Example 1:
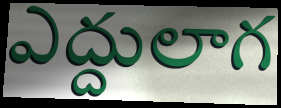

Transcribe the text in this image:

ఎద్దులాగ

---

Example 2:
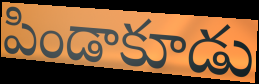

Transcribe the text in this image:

పిండాకూడు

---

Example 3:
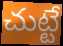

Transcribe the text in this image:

చుట్టే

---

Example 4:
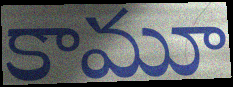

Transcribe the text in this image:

కామూ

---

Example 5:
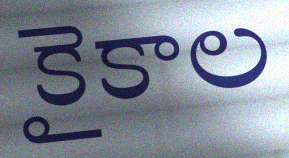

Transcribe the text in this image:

కైకాల